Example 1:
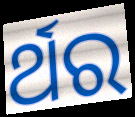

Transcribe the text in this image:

ର୍ଥର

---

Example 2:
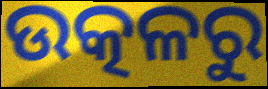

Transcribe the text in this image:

ଉତ୍କଳରୁ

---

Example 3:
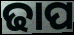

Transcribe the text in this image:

ଢାପ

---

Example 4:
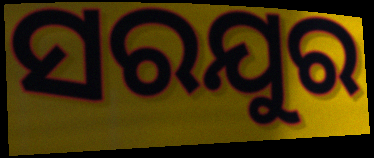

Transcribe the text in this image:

ସରଯୁର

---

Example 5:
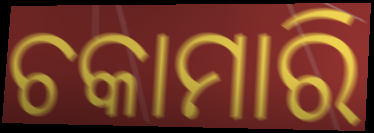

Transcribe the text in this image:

ଚକାମାରି